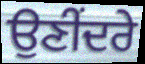
ਉਣੀਂਦਰੇ